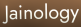
Jainology